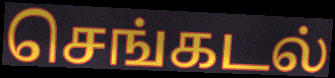
செங்கடல்